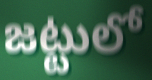
జట్టులో